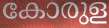
കോരുള